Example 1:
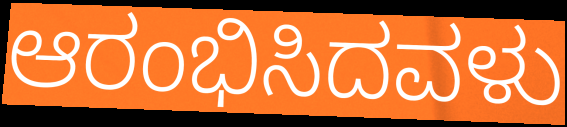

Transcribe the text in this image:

ಆರಂಭಿಸಿದವಳು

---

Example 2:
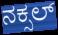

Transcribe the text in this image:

ನಕ್ಸಲ್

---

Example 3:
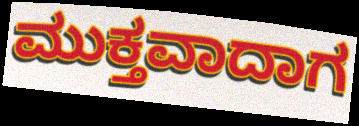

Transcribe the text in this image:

ಮುಕ್ತವಾದಾಗ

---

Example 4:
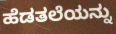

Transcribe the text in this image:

ಹೆಡತಲೆಯನ್ನು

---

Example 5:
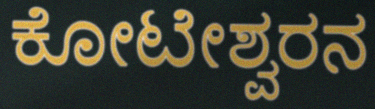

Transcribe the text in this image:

ಕೋಟೇಶ್ವರನ